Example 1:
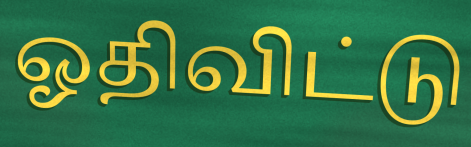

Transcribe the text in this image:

ஓதிவிட்டு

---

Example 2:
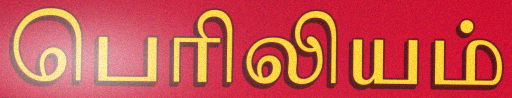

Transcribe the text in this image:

பெரிலியம்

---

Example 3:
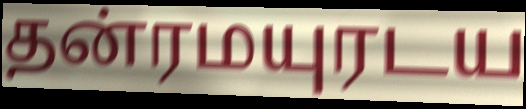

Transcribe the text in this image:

தன்ரமயுரடய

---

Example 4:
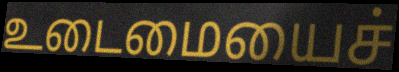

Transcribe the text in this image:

உடைமையைச்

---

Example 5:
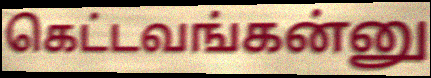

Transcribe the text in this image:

கெட்டவங்கன்னு